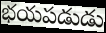
భయపడుడు